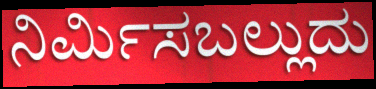
ನಿರ್ಮಿಸಬಲ್ಲುದು